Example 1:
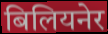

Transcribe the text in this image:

बिलियनेर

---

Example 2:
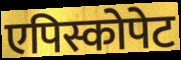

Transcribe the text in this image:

एपिस्कोपेट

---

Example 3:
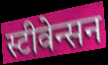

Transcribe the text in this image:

स्टीवेन्सन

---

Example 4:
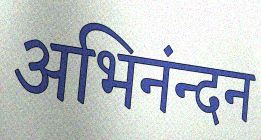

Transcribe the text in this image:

अभिनंन्दन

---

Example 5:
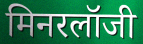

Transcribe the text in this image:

मिनरलॉजी